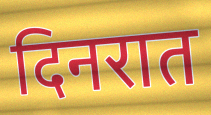
दिनरात